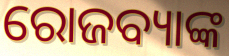
ରୋଜବ୍ୟାଙ୍କ